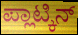
ಪ್ಲಾಟ್ಕಿನ್